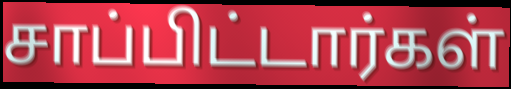
சாப்பிட்டார்கள்